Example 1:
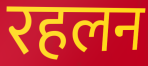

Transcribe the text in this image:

रहलन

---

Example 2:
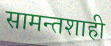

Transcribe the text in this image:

सामन्तशाही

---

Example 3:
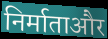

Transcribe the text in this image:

निर्माताऔर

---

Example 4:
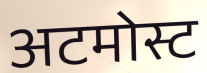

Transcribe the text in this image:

अटमोस्ट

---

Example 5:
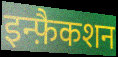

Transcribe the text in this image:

इन्फ़ैकशन